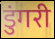
डुंगरी